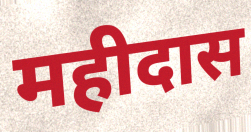
महीदास